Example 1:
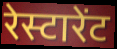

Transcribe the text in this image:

रेस्टारेंट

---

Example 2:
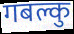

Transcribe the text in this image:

गबल्कु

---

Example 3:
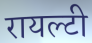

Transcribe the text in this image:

रायल्टी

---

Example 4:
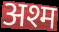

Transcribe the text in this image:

अश्म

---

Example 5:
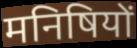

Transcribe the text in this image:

मनिषियों